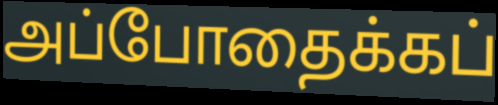
அப்போதைக்கப்